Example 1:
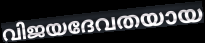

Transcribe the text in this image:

വിജയദേവതയായ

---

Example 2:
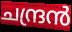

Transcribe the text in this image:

ചന്ദ്രൻ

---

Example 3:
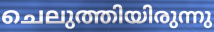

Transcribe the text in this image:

ചെലുത്തിയിരുന്നു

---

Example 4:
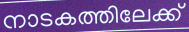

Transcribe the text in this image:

നാടകത്തിലേക്ക്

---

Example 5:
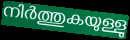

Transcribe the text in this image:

നിർത്തുകയുള്ളു